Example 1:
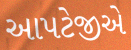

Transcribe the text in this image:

આપટેજીએ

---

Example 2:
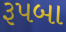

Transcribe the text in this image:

રૂપબા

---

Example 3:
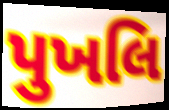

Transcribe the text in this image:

પુખલિ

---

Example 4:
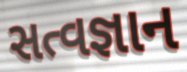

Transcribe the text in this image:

સત્વજ્ઞાન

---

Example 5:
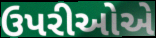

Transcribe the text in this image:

ઉપરીઓએ